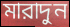
মারাদুন